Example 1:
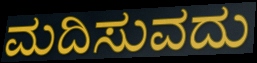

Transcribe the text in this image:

ಮದಿಸುವದು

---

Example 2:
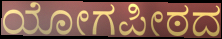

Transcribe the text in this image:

ಯೋಗಪೀಠದ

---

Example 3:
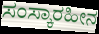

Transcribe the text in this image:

ಸಂಸ್ಕಾರಹೀನ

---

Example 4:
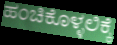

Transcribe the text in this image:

ಹಂಚಿಕೊಳ್ಳಲಿಕ್ಕೆ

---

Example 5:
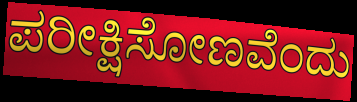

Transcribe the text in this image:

ಪರೀಕ್ಷಿಸೋಣವೆಂದು